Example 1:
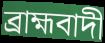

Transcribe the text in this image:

ব্রাহ্মবাদী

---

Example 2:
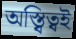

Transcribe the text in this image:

অস্ত্বিত্বই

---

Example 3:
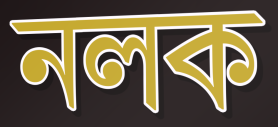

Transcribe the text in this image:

নলক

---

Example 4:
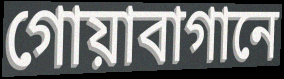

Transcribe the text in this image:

গোয়াবাগানে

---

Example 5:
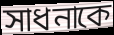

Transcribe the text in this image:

সাধনাকে